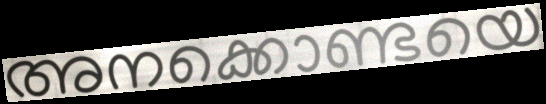
അനക്കൊണ്ടയെ